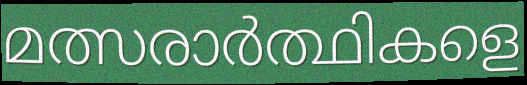
മത്സരാർത്ഥികളെ